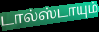
டால்ஸ்டாயும்